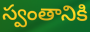
స్వంతానికి